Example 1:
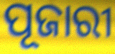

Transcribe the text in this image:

ପୂଜାରୀ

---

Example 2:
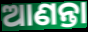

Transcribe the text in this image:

ଆଣନ୍ତା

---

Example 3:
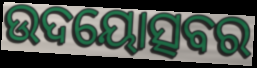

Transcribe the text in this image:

ଉଦୟୋତ୍ସବର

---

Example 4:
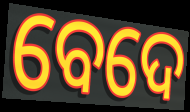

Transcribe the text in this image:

ବେଦେ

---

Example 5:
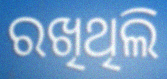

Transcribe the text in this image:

ରଖିଥିଲି